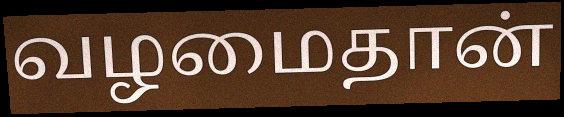
வழமைதான்